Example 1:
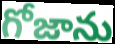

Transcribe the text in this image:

గోజాను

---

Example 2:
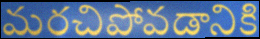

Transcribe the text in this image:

మరచిపోవడానికి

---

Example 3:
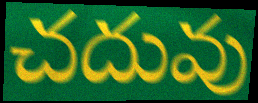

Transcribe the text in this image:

చదువు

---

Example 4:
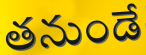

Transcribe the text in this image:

తనుండే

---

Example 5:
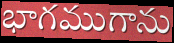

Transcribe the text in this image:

భాగముగాను